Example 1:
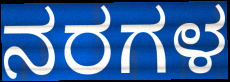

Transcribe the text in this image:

ನರಗಳ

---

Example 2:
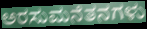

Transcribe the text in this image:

ಅರಸುಮನೆತನಗಳು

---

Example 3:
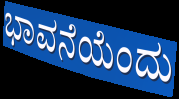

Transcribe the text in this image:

ಭಾವನೆಯೆಂದು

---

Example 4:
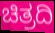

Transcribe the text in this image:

ಚಿತ್ರದಿ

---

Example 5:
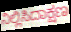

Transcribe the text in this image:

ನಿಲ್ಲಿಸಿದಾಕ್ಷಣ